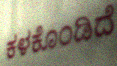
ಕಳಕೊಂಡಿದೆ